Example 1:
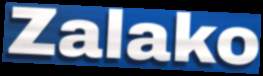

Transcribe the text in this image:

Zalako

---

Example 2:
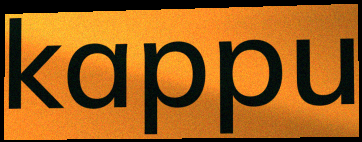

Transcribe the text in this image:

kappu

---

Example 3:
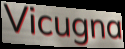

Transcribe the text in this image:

Vicugna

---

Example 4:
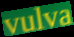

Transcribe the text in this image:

vulva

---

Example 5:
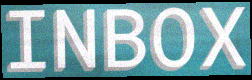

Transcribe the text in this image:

INBOX